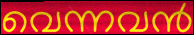
വെന്നവൻ